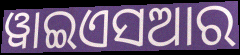
ୱାଇଏସଆର